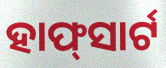
ହାଫ୍‍ସାର୍ଟ